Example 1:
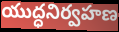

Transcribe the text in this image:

యుద్ధనిర్వహణ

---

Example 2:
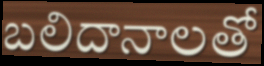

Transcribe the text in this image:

బలిదానాలతో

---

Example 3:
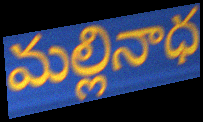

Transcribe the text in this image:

మల్లినాధ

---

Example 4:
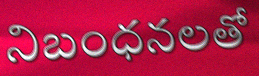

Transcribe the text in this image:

నిబంధనలతో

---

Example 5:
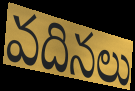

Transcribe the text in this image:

వదినలు